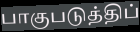
பாகுபடுத்திப்